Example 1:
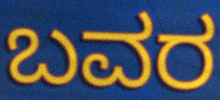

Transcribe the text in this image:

ಬವರ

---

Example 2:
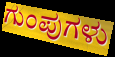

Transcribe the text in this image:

ಗುಂಪುಗಳು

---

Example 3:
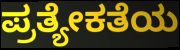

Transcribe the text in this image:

ಪ್ರತ್ಯೇಕತೆಯ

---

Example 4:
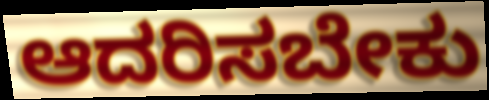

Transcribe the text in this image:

ಆದರಿಸಬೇಕು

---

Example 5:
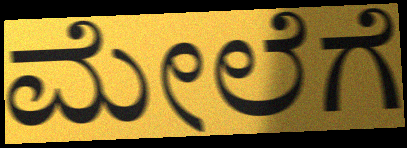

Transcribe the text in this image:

ಮೇಲೆಗೆ